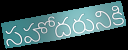
సహోదరునికి